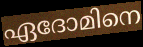
ഏദോമിനെ